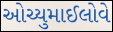
ઓચ્યુમાઈલોવે